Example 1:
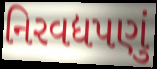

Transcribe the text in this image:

નિરવદ્યપણું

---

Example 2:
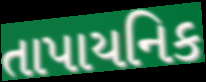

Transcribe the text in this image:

તાપાયનિક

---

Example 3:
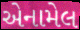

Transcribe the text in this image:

એનામેલ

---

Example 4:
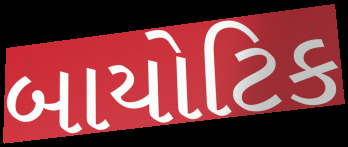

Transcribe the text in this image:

બાયોટિક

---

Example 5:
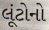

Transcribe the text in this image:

લૂંટોનો